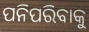
ପନିପରିବାକୁ